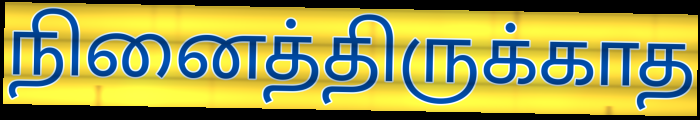
நினைத்திருக்காத